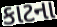
કાટના